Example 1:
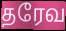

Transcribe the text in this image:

தரேவ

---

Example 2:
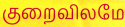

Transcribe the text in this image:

குறைவிலமே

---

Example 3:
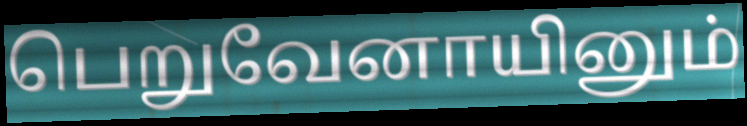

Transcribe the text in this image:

பெறுவேனாயினும்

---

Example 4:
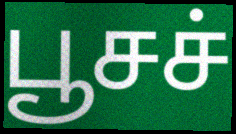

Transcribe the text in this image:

பூசச்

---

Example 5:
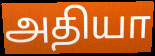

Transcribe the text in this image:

அதியா